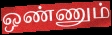
ஒண்ணும்